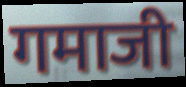
गमाजी